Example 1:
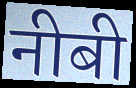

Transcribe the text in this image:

नीबी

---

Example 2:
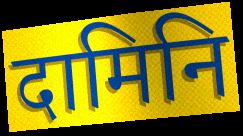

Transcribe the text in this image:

दामिनि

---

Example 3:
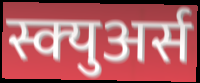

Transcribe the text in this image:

स्क्युअर्स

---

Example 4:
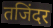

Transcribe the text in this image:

तजिंदर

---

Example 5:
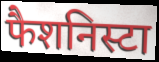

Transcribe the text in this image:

फैशनिस्टा